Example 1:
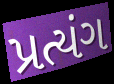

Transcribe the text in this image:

પ્રત્યંગ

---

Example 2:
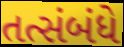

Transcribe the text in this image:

તત્સંબંધે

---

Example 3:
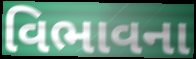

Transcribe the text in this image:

વિભાવના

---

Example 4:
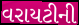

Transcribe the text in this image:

વરાયટીની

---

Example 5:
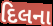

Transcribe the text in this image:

દિલના